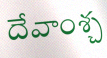
దేవాంశ్చ